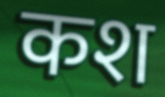
कश